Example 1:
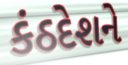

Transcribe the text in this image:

કંઠદેશને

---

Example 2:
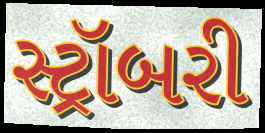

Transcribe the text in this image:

સ્ટ્રૉબરી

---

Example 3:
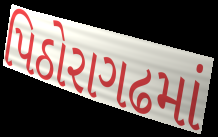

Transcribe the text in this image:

પિઠોરાગઢમાં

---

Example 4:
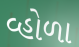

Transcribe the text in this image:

વ્હોળા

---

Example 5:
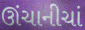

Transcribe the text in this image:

ઊંચાનીચાં